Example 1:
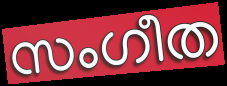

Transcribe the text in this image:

സംഗീത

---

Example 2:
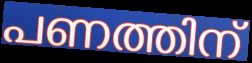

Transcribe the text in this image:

പണത്തിന്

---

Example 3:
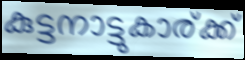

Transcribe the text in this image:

കുട്ടനാട്ടുകാര്ക്ക്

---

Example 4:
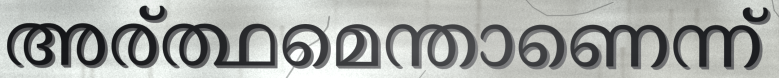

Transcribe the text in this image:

അര്ത്ഥമെന്താണെന്ന്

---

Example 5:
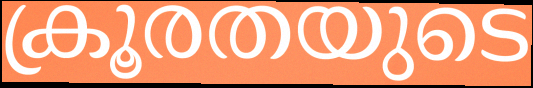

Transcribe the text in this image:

ക്രൂരതയുടെ